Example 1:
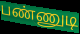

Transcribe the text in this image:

பண்ணுடி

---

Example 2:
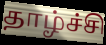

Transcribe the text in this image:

தாழ்ச்சி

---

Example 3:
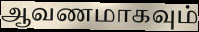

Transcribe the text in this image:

ஆவணமாகவும்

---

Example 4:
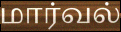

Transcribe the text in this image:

மார்வல்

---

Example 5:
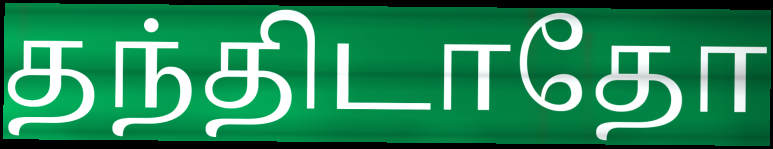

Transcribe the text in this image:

தந்திடாதோ